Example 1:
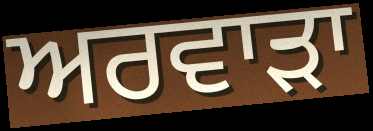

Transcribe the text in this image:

ਅਰਵਾੜਾ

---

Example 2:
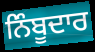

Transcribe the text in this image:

ਨਿੰਬੂਦਾਰ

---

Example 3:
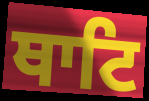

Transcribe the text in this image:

ਥਾਟਿ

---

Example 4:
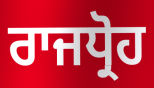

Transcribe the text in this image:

ਰਾਜਧ੍ਰੋਹ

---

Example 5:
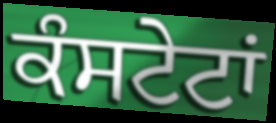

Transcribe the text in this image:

ਕੰਸਟੇਟਾਂ